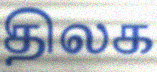
திலக